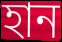
হান